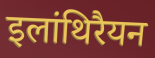
इलांथिरैयन